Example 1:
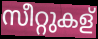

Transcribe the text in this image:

സീറ്റുകള്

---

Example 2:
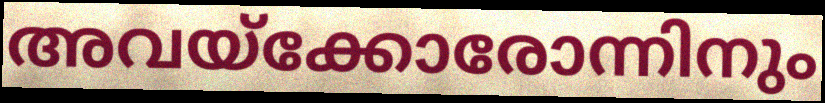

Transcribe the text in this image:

അവയ്ക്കോരോന്നിനും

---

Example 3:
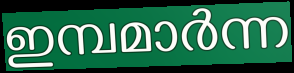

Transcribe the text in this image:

ഇമ്പമാർന്ന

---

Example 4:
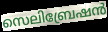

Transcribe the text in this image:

സെലിബ്രേഷൻ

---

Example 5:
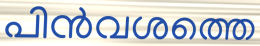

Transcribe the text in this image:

പിൻവശത്തെ